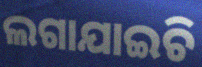
ଲଗାଯାଇଚି